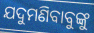
ଯଦୁମଣିବାବୁଙ୍କୁ